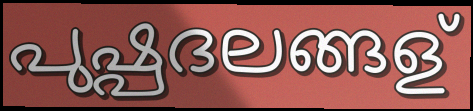
പുഷ്പദലങ്ങള്